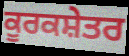
ਕੂਰਕਸ਼ੇਤਰ